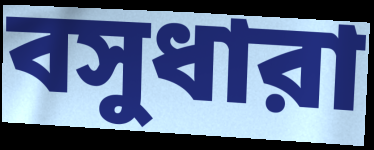
বসুধারা